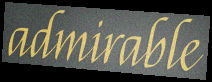
admirable